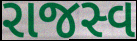
રાજસ્વ